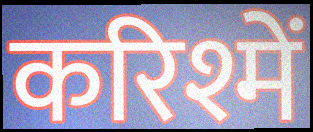
करिश्में